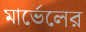
মার্ভেলের